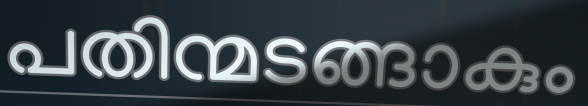
പതിന്മടങ്ങാകും